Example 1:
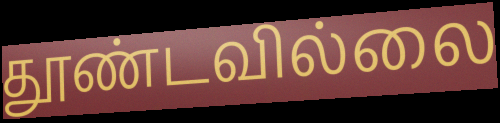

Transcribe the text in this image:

தூண்டவில்லை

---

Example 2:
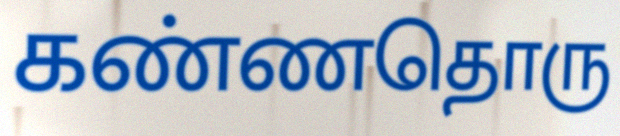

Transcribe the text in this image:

கண்ணதொரு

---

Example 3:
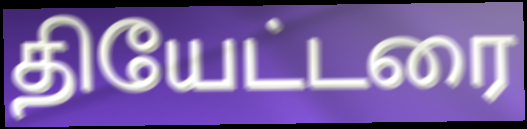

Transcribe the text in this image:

தியேட்டரை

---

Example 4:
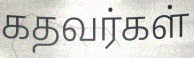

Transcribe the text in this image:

கதவர்கள்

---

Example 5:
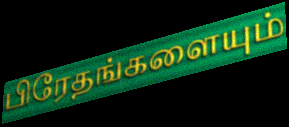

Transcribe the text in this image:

பிரேதங்களையும்